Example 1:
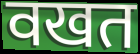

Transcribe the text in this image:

वखत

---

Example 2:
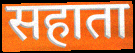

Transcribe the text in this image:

सहाता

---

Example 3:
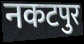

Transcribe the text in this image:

नकटपुर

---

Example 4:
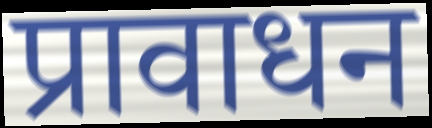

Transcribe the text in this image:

प्रावाधन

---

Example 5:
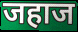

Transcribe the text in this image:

जहाज